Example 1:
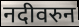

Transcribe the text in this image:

नदीवरुन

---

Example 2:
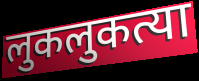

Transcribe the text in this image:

लुकलुकत्या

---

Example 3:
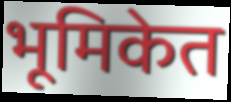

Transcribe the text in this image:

भूमिकेत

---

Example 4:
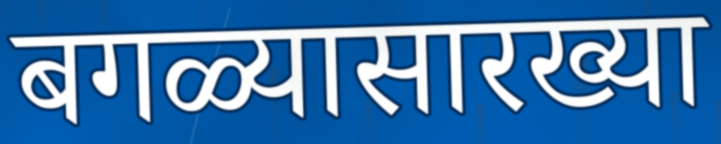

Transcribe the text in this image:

बगळ्यासारख्या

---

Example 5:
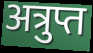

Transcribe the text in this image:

अत्रुप्त